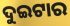
ଦୁଇଟାର